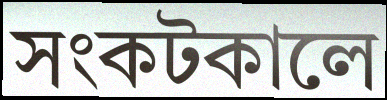
সংকটকালে